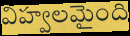
విహ్వలమైంది